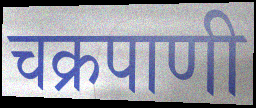
चक्रपाणी